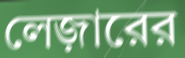
লেজ়ারের